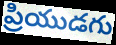
ప్రియుడగు